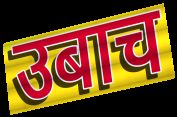
उबाच